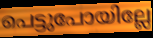
പെട്ടുപോയില്ലേ